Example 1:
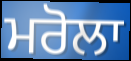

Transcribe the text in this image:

ਮਰੋਲਾ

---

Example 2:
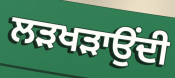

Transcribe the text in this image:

ਲੜਖੜਾਉਂਦੀ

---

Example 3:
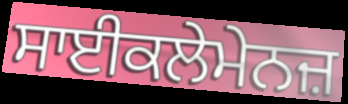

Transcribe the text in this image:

ਸਾਈਕਲੇਮੇਨਜ਼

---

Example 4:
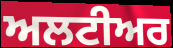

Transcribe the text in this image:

ਅਲਟੀਅਰ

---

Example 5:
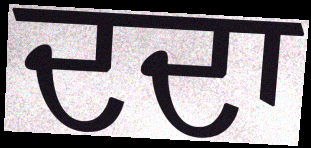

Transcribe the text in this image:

ਦਦਾ